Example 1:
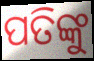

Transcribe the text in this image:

ପତିଙ୍କୁ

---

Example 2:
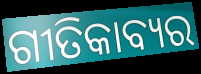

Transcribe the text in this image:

ଗୀତିକାବ୍ୟର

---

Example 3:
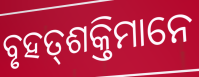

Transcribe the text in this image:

ବୃହତ୍‌ଶକ୍ତିମାନେ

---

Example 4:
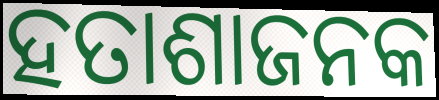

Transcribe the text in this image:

ହତାଶାଜନକ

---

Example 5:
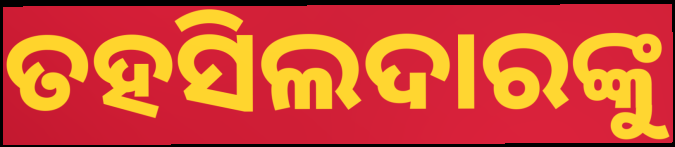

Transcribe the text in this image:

ତହସିଲଦାରଙ୍କୁ